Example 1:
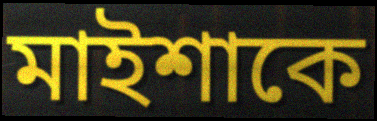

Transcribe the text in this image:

মাইশাকে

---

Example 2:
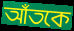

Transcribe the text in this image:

আঁতকে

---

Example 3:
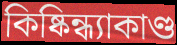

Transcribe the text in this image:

কিষ্কিন্ধ্যাকাণ্ড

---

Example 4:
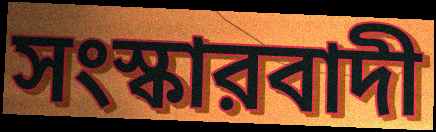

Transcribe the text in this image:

সংস্কারবাদী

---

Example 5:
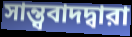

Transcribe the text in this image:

সান্ত্ববাদদ্বারা